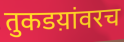
तुकडय़ांवरच